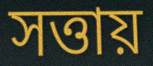
সত্তায়